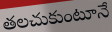
తలచుకుంటూనే